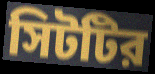
সিটটির